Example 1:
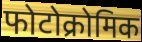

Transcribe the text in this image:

फोटोक्रोमिक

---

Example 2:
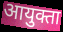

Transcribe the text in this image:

आयुक्ता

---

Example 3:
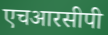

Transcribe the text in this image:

एचआरसीपी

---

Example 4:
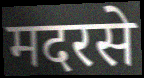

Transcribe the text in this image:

मदरसे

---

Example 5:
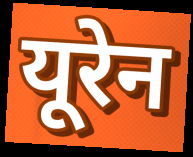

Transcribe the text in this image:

यूरेन